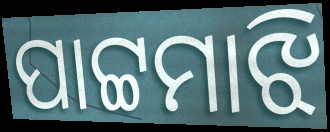
ପାଟ୍ଟମାଝି